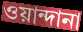
ওয়ান্দানা